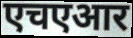
एचएआर